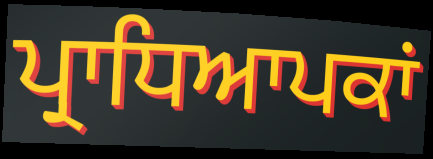
ਪ੍ਰਾਧਿਆਪਕਾਂ